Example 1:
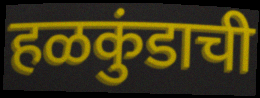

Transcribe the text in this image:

हळकुंडाची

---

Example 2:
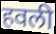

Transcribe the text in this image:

हवली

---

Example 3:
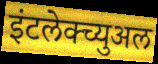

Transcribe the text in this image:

इंटलेक्च्युअल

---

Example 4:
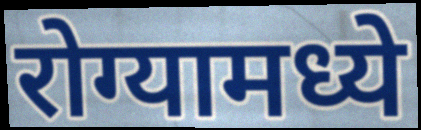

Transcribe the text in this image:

रोग्यामध्ये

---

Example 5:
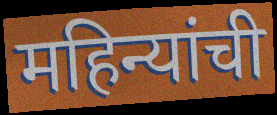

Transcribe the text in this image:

महिन्यांची